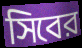
সিবের